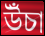
উঁচা